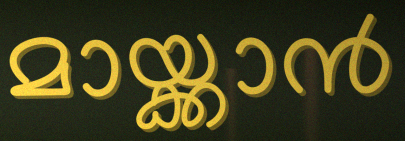
മായ്ക്കാൻ